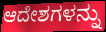
ಆದೇಶಗಳನ್ನು